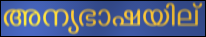
അന്യഭാഷയില്